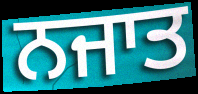
ਨਜਾਤ